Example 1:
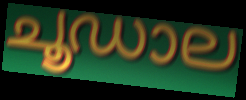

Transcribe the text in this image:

ചൂഡാല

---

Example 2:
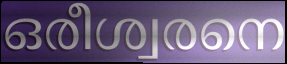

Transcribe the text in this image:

ഒരീശ്വരനെ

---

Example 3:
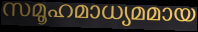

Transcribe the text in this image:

സമൂഹമാധ്യമമായ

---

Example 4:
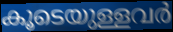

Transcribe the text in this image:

കൂടെയുള്ളവർ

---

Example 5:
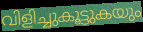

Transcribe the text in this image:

വിളിച്ചുകൂട്ടുകയും